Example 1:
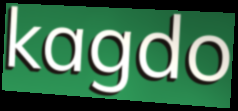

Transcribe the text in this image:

kagdo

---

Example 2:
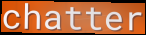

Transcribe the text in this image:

chatter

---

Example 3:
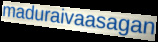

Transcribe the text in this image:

maduraivaasagan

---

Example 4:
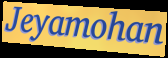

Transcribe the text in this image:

Jeyamohan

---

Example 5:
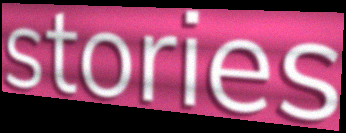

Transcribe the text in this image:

stories